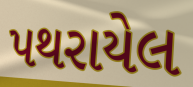
પથરાયેલ